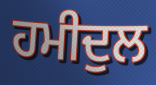
ਹਮੀਦੁਲ